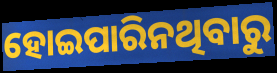
ହୋଇପାରିନଥିବାରୁ